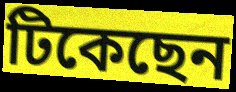
টিকেছেন